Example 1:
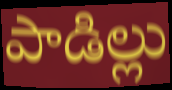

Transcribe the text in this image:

పాడిల్లు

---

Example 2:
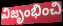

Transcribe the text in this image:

విజృంభించి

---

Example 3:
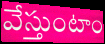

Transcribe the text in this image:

వేస్తుంటాం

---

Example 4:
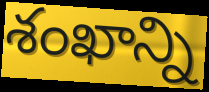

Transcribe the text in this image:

శంఖాన్ని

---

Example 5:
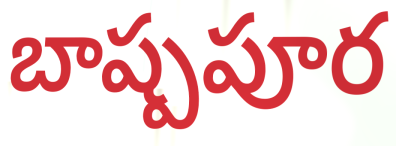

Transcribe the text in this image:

బాష్పపూర